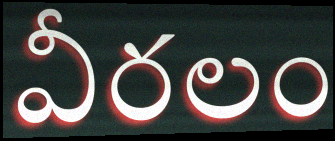
వీరలం